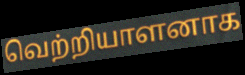
வெற்றியாளனாக